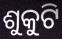
ଶୁକୁଟି